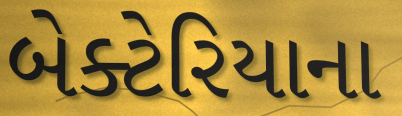
બેક્ટેરિયાના